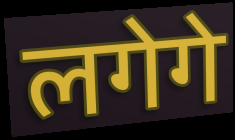
लगेगे